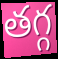
తగ్గ